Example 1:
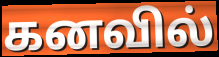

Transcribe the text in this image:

கனவில்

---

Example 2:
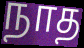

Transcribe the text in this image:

நாத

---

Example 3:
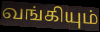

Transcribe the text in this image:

வங்கியும்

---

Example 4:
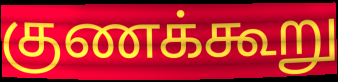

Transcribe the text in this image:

குணக்கூறு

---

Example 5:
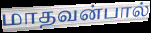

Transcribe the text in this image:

மாதவன்பால்